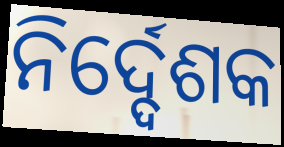
ନିର୍ଦ୍ଦେଶକ